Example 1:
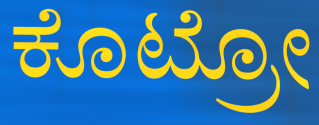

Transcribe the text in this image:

ಕೊಟ್ರೋ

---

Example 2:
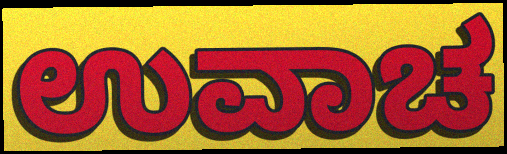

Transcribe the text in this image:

ಉವಾಚ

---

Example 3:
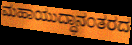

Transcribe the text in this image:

ಮಹಾಯುದ್ಧಾನಂತರದ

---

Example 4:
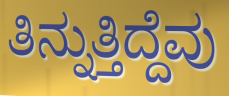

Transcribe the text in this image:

ತಿನ್ನುತ್ತಿದ್ದೆವು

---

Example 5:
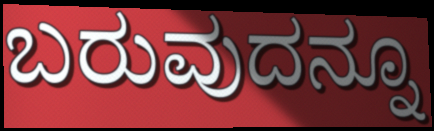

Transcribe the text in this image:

ಬರುವುದನ್ನೂ